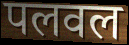
पलवल